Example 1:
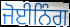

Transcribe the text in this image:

ਜੋਈਨਿੰਗ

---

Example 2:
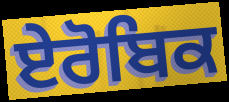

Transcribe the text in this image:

ਏਰੋਬਿਕ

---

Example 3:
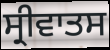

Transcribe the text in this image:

ਸ੍ਰੀਵਾਤਸ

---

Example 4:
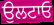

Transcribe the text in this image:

ਉਲਟਾਓ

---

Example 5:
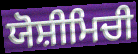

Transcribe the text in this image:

ਯੋਸ਼ੀਮਿਚੀ